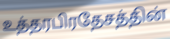
உத்தரபிரதேசத்தின்